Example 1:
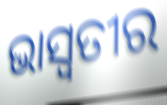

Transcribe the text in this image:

ଭାସ୍ଵତୀର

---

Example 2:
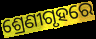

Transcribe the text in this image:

ଶ୍ରେଣୀଗୃହରେ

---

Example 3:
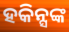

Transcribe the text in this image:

ହକିନ୍ସଙ୍କ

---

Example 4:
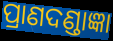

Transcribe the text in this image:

ପ୍ରାଣଦଣ୍ଡାଜ୍ଞା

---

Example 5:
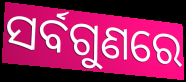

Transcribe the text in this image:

ସର୍ବଗୁଣରେ